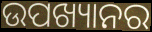
ଉପଖ୍ୟାନର